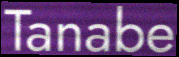
Tanabe